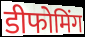
डीफोमिंग